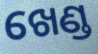
ଖେଣ୍ଡ